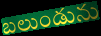
బలుండును